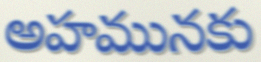
అహమునకు